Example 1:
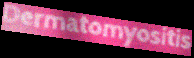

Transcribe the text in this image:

Dermatomyositis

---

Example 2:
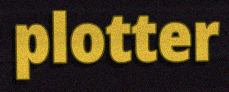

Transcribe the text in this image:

plotter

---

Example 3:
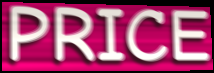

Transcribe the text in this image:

PRICE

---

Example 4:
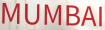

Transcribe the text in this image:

MUMBAI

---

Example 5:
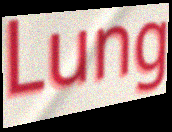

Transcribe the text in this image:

Lung